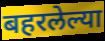
बहरलेल्या